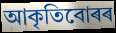
আকৃতিবোৰৰ